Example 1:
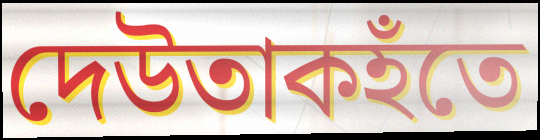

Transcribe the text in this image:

দেউতাকহঁতে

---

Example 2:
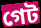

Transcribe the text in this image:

গেট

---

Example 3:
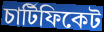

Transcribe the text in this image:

চাৰ্টিফিকেট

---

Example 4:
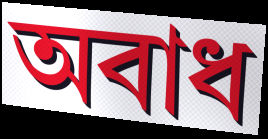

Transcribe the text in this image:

অবাধ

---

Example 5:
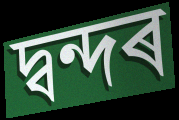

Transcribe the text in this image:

দ্বন্দৰ